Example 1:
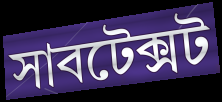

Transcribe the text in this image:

সাবটেক্সট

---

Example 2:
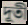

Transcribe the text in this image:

দূতী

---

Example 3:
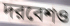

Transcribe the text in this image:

দরবেশও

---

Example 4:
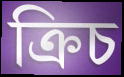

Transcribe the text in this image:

ক্রিচ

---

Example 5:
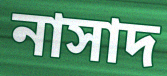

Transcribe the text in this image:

নাসাদ